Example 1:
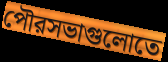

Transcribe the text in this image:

পৌরসভাগুলোতে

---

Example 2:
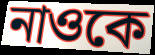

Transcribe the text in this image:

নাওকে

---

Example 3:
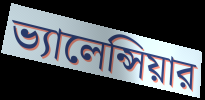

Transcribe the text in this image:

ভ্যালেন্সিয়ার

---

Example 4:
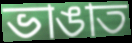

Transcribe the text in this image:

ভাঙাত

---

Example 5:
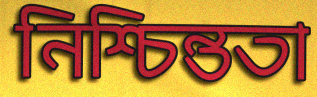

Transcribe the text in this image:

নিশ্চিন্ততা